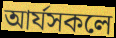
আৰ্যসকলে